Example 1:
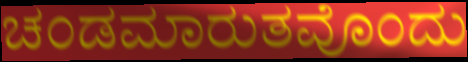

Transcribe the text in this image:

ಚಂಡಮಾರುತವೊಂದು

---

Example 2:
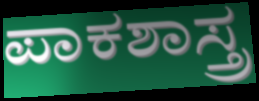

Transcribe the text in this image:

ಪಾಕಶಾಸ್ತ್ರ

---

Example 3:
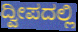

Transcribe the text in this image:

ದ್ವೀಪದಲ್ಲಿ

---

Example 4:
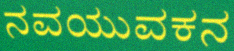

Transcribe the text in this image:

ನವಯುವಕನ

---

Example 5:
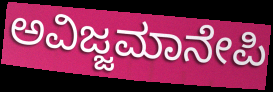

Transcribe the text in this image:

ಅವಿಜ್ಜಮಾನೇಪಿ